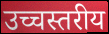
उच्चस्तरीय